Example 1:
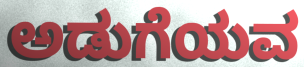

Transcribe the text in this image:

ಅಡುಗೆಯವ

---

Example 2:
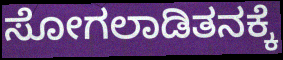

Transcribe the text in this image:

ಸೋಗಲಾಡಿತನಕ್ಕೆ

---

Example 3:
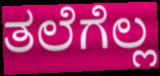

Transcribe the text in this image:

ತಲೆಗೆಲ್ಲ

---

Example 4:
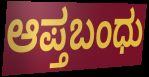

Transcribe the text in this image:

ಆಪ್ತಬಂಧು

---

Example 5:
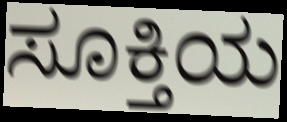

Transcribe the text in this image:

ಸೂಕ್ತಿಯ